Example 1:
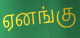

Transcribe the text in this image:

ஏனங்கு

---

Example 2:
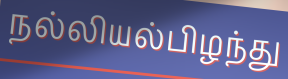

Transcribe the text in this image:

நல்லியல்பிழந்து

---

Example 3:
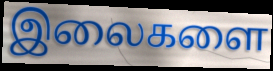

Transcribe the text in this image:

இலைகளை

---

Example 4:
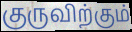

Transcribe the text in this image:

குருவிற்கும்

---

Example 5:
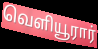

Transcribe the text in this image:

வெளியூரார்